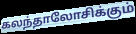
கலந்தாலோசிக்கும்